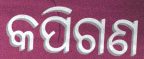
କପିଗଣ